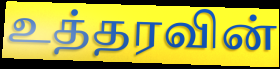
உத்தரவின்